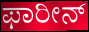
ಫಾರೀನ್